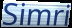
Simri